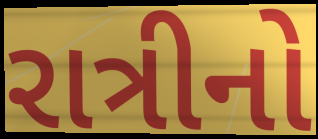
રાત્રીનો